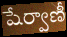
షేర్వాణీ